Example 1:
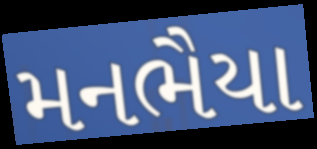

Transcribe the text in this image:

મનભૈયા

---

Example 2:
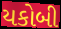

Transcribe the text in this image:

યકોબી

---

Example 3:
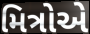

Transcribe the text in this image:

મિત્રોએ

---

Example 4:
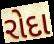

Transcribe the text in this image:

રોદા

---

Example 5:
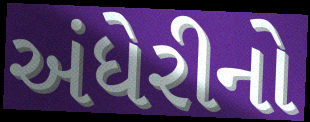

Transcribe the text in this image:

અંધેરીનો